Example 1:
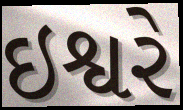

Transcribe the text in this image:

ઇશ્વરે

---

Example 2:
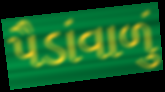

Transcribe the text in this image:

પૈડાંવાળું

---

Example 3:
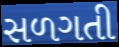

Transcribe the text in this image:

સળગતી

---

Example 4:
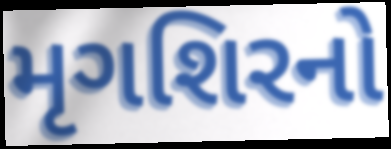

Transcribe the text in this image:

મૃગશિરનો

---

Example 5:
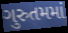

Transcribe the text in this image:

ગુરુતમમાં